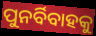
ପୁନର୍ବିବାହକୁ